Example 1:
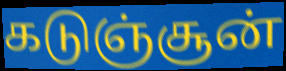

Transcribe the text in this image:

கடுஞ்சூன்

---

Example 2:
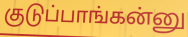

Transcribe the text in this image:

குடுப்பாங்கன்னு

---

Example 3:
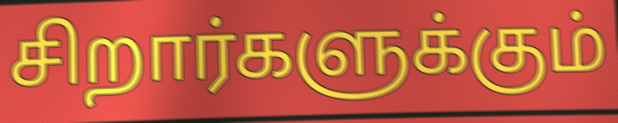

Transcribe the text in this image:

சிறார்களுக்கும்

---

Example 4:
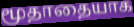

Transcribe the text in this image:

மூதாதையாக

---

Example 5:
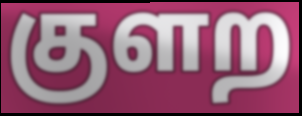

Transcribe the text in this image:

குளற